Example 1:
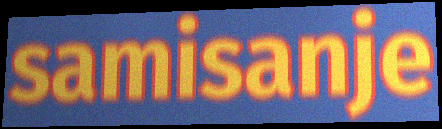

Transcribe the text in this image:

samisanje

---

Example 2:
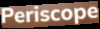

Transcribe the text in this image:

Periscope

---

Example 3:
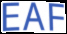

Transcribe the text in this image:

EAF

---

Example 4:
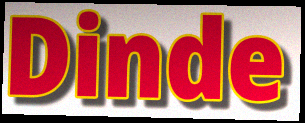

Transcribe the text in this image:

Dinde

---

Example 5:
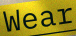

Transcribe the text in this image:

Wear